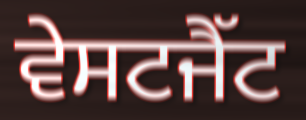
ਵੇਸਟਜੈੱਟ